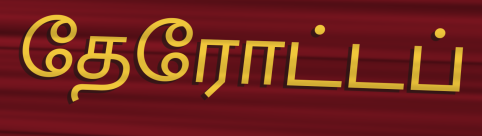
தேரோட்டப்